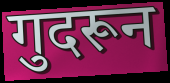
गुदरून